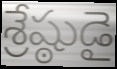
శ్రేష్ఠుడై